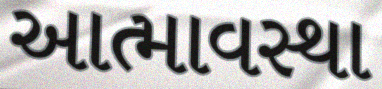
આત્માવસ્થા